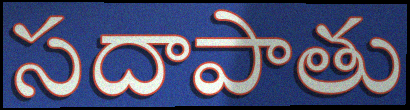
సదాపాతు